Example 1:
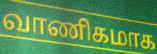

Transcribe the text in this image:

வாணிகமாக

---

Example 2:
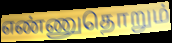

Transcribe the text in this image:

எண்ணுதொறும்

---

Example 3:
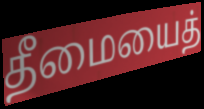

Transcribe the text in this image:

தீமையைத்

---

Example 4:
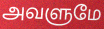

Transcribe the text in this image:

அவளுமே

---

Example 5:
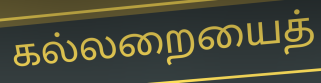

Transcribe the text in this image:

கல்லறையைத்